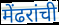
मेंढरांची